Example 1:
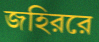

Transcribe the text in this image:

জহিররে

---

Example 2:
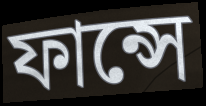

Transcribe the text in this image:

ফান্সে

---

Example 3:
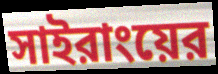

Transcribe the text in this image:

সাইরাংয়ের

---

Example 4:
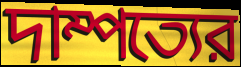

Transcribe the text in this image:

দাম্পত্যের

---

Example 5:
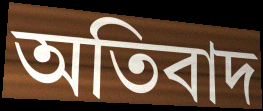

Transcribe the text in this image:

অতিবাদ